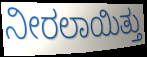
ನೀರಲಾಯಿತ್ತು